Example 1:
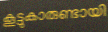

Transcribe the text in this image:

കൂട്ടുകാരുണ്ടായി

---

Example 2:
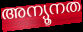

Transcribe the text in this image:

അന്യൂനത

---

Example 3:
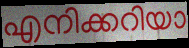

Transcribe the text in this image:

എനിക്കറിയാ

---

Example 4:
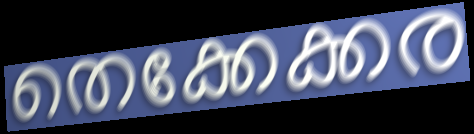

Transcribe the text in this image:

തെക്കേക്കര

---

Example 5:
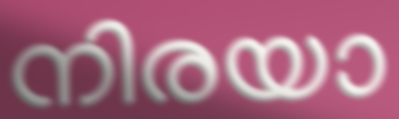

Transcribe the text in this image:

നിരയാ